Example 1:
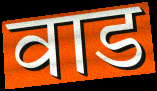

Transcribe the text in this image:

वाड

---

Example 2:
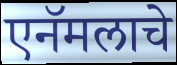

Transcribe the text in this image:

एनॅमलाचे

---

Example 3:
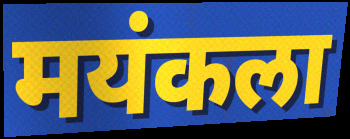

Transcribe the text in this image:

मयंकला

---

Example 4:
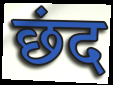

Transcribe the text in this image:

छंद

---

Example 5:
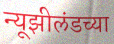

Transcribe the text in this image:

न्यूझीलंडच्या